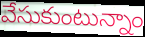
వేసుకుంటున్నాం